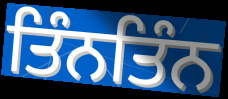
ਤਿੰਨਤਿੰਨ